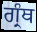
ਗ੍ਰੰਥ